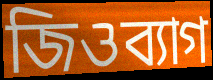
জিওব্যাগ